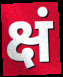
क्षं